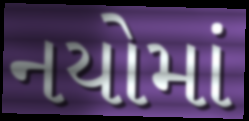
નયોમાં